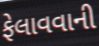
ફેલાવવાની